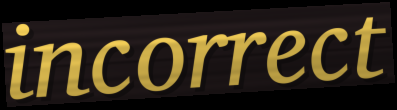
incorrect